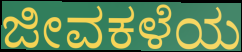
ಜೀವಕಳೆಯ